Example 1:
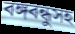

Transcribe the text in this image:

বঙ্গবন্ধুসহ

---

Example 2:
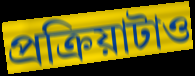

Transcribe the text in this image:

প্রক্রিয়াটাও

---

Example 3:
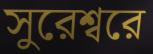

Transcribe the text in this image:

সুরেশ্বরে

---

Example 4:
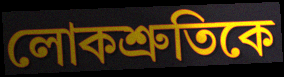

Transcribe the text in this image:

লোকশ্রুতিকে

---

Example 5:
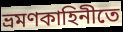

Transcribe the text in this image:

ভ্রমণকাহিনীতে